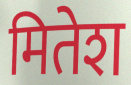
मितेश